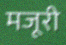
मजूरी